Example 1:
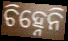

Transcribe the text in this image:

ଚିହ୍ନେନି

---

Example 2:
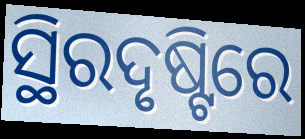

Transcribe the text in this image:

ସ୍ଥିରଦୃଷ୍ଟିରେ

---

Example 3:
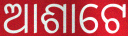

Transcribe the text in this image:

ଆଶାଟେ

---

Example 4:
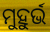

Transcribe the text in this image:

ମୁହୁର୍ଭ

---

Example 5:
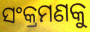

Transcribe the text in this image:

ସଂକ୍ରମଣକୁ